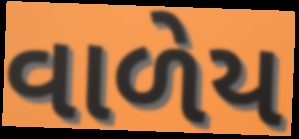
વાળેય